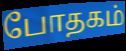
போதகம்